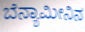
ಬೆನ್ಯಾಮೀನಿನ